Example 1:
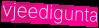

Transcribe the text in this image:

vjeedigunta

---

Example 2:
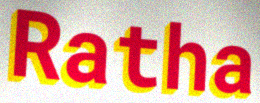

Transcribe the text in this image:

Ratha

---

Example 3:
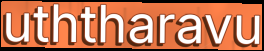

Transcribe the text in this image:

uththaravu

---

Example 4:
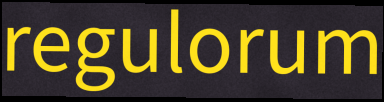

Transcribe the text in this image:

regulorum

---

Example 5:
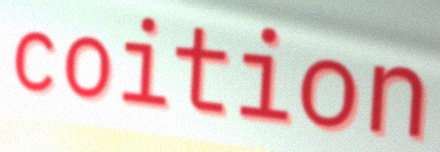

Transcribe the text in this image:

coition